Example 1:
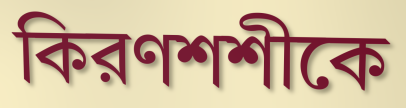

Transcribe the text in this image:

কিরণশশীকে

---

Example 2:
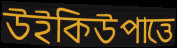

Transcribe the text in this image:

উইকিউপাত্তে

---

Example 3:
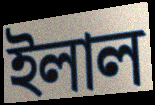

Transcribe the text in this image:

ইলাল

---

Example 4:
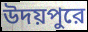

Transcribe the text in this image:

উদয়পুরে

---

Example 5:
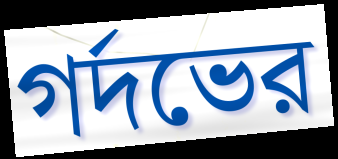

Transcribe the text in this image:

গর্দভের